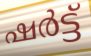
ഷർട്ട്